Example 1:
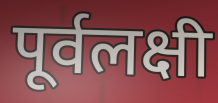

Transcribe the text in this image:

पूर्वलक्षी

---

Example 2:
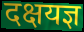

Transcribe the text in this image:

दक्षयज्ञ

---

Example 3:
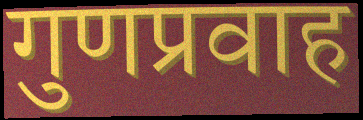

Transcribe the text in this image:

गुणप्रवाह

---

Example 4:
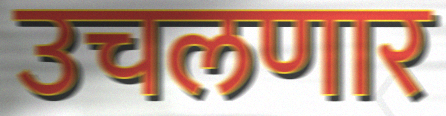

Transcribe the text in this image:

उचलणार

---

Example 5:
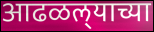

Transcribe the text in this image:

आढळल्याच्या